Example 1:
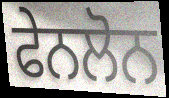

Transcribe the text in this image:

ਫੇਨਲੋਨ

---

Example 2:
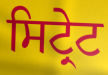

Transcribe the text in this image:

ਸਿਟ੍ਰੇਟ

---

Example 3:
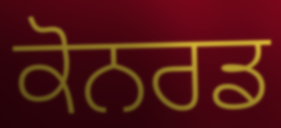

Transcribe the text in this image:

ਕੋਨਰਡ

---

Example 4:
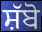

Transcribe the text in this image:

ਸ਼ੱਬੋ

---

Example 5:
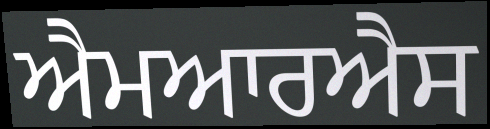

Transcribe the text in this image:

ਐਮਆਰਐਸ